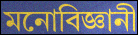
মনোবিজ্ঞানী